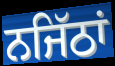
ਨਜਿੱਠਾਂ